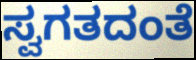
ಸ್ವಗತದಂತೆ